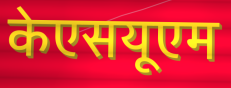
केएसयूएम